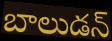
బాలుడన్